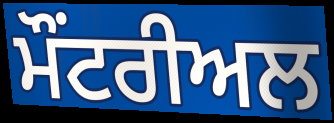
ਮੌਂਟਰੀਅਲ